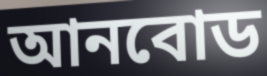
আনবোড